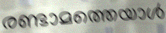
രണ്ടാമത്തെയാൾ